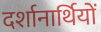
दर्शानार्थियों